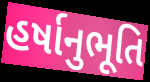
હર્ષાનુભૂતિ